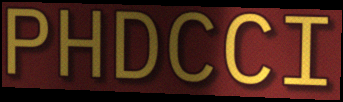
PHDCCI